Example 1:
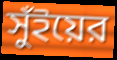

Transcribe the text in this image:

সুঁইয়ের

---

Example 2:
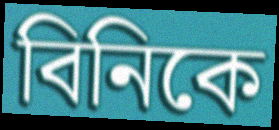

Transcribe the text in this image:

বিনিকে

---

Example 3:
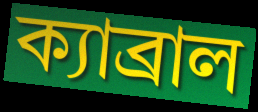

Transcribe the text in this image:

ক্যাব্রাল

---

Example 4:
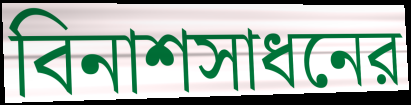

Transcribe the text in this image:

বিনাশসাধনের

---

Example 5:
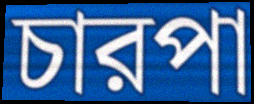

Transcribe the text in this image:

চারপা